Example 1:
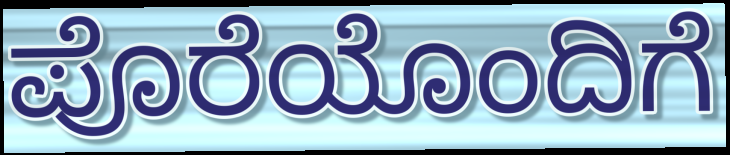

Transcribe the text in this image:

ಪೊರೆಯೊಂದಿಗೆ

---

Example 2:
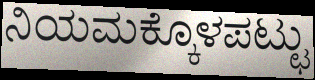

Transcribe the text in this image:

ನಿಯಮಕ್ಕೊಳಪಟ್ಟು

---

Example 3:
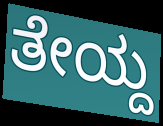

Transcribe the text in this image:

ತೇಯ್ದ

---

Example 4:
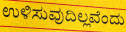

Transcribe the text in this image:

ಉಳಿಸುವುದಿಲ್ಲವೆಂದು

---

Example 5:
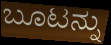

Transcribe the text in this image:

ಬೂಟನ್ನು